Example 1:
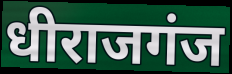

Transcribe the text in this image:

धीराजगंज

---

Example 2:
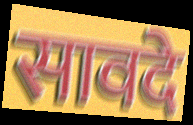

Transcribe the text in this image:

सावदे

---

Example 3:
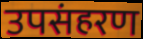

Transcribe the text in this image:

उपसंहरण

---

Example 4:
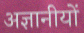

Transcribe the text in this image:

अज्ञानीयों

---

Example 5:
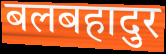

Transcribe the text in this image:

बलबहादुर